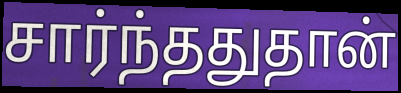
சார்ந்ததுதான்